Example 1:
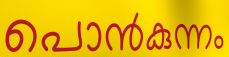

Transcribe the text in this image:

പൊൻകുന്നം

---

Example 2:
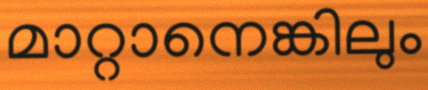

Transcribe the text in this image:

മാറ്റാനെങ്കിലും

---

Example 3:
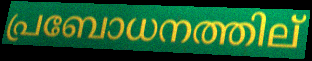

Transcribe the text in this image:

പ്രബോധനത്തില്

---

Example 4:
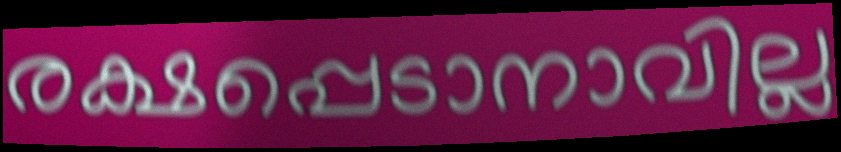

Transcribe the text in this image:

രക്ഷപ്പെടാനാവില്ല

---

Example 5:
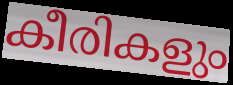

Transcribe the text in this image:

കീരികളും